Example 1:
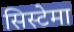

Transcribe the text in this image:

सिस्टेमा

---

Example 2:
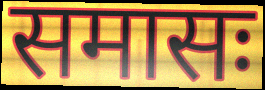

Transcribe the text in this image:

समासः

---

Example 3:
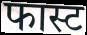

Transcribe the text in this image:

फास्ट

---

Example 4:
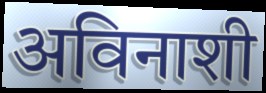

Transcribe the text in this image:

अविनाशी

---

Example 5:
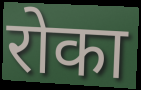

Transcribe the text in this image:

रोका